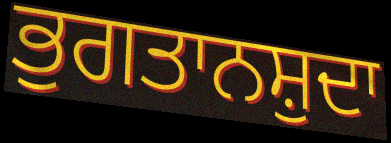
ਭੁਗਤਾਨਸ਼ੁਦਾ